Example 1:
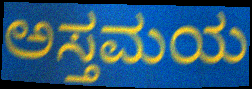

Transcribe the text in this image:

ಅಸ್ತಮಯ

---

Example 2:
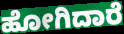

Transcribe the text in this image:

ಹೋಗಿದಾರೆ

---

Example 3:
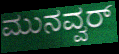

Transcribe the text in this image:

ಮುನವ್ವರ್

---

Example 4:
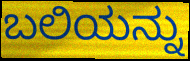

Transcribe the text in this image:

ಬಲಿಯನ್ನು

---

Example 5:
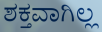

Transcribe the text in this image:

ಶಕ್ತವಾಗಿಲ್ಲ